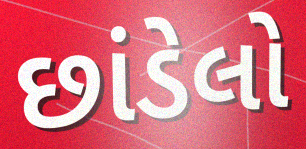
છાંડેલો